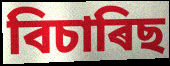
বিচাৰিছ